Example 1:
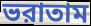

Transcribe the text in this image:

ভরাতাম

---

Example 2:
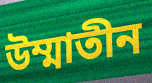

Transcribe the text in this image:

উম্মাতীন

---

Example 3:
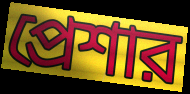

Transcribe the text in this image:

প্রেশার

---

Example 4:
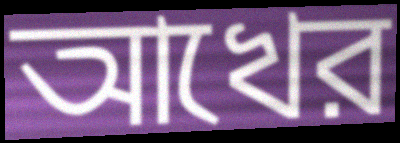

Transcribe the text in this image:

আখের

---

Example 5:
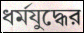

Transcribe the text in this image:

ধর্মযুদ্ধের